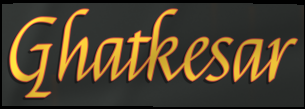
Ghatkesar